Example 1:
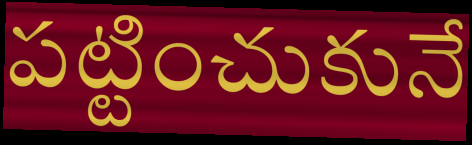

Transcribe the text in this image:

పట్టించుకునే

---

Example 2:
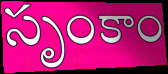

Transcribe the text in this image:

సృంకాం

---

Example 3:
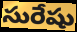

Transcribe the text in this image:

సురేషు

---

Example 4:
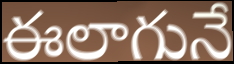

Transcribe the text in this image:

ఈలాగునే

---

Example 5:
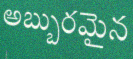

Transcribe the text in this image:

అబ్బురమైన